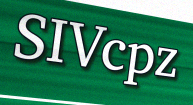
SIVcpz